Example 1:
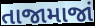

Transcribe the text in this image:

તાજામાજાં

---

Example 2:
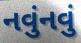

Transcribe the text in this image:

નવુંનવું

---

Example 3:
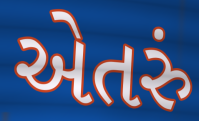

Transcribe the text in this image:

એતરું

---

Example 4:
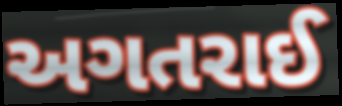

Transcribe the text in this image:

અગતરાઈ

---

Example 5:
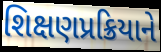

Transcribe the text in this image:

શિક્ષણપ્રક્રિયાને